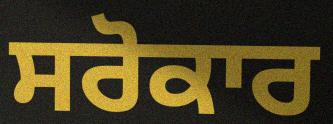
ਸਰੋਕਾਰ